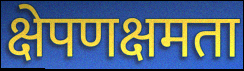
क्षेपणक्षमता